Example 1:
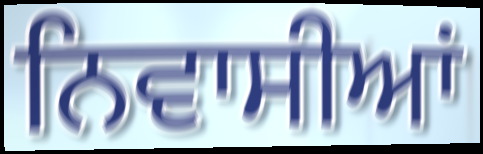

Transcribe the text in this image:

ਨਿਵਾਸੀਆਂ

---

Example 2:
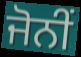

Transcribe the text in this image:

ਜੋਨੀਂ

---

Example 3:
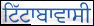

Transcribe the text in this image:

ਟਿੱਟਾਬਾਵਾਸੀ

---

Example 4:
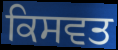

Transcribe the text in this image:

ਕਿਸਵਤ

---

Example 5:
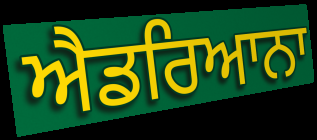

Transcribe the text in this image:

ਐਡਰਿਆਨਾ